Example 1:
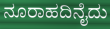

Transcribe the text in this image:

ನೂರಾಹದಿನೈದು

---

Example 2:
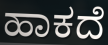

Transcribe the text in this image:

ಹಾಕದೆ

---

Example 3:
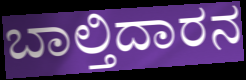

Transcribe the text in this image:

ಬಾಲ್ತಿದಾರನ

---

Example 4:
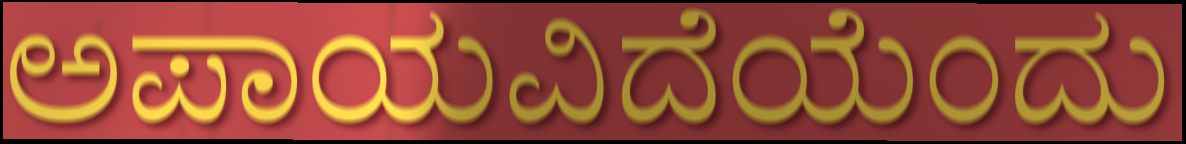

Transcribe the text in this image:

ಅಪಾಯವಿದೆಯೆಂದು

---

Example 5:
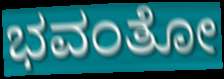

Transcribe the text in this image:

ಭವಂತೋ